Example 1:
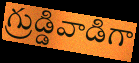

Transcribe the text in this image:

గ్రుడ్డివాడిగా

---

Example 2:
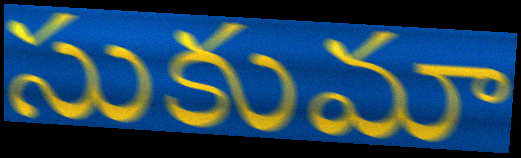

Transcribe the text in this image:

సుకుమా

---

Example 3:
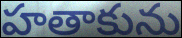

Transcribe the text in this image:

హతాకును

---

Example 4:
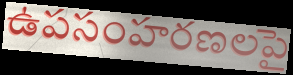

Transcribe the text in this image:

ఉపసంహరణలపై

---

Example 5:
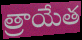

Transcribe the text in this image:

త్రాయేత